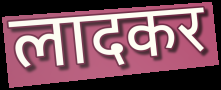
लादकर